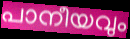
പാനീയവും